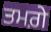
ਤਮਗ਼ੇ